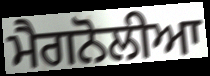
ਮੈਗਨੋਲੀਆ